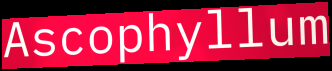
Ascophyllum